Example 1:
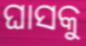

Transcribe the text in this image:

ଘାସକୁ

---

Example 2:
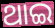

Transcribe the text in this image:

ଥାଇ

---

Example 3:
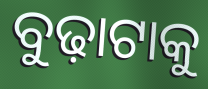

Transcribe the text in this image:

ବୁଢ଼ାଟାକୁ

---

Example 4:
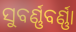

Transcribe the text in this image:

ସୁବର୍ଣ୍ଣବର୍ଣ୍ଣା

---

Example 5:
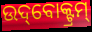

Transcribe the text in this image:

ଉଦ୍‌ବୋକ୍ଟ୍ରମ୍